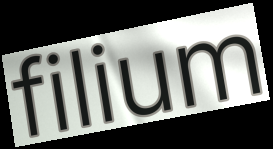
filium